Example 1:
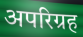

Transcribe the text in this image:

अपरिग्रह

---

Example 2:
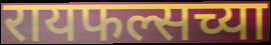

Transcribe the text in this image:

रायफल्सच्या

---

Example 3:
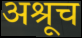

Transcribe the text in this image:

अश्रूच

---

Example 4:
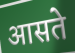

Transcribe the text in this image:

आसते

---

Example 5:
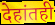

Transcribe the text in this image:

देहांतही